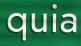
quia